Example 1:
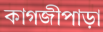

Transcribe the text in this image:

কাগজীপাড়া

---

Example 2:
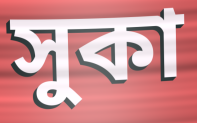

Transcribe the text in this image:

সুকা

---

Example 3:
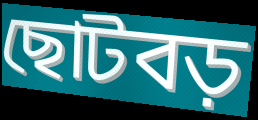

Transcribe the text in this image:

ছোটবড়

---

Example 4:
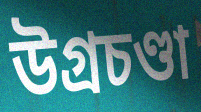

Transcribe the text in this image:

উগ্রচণ্ডা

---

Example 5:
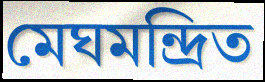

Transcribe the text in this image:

মেঘমন্দ্রিত